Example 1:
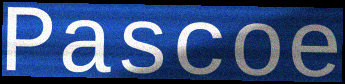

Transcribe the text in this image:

Pascoe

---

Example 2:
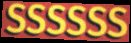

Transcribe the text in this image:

SSSSSS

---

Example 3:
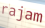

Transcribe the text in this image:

rajam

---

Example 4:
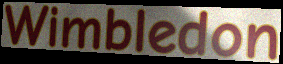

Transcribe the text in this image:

Wimbledon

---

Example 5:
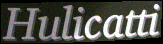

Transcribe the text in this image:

Hulicatti